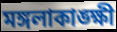
মঙ্গলাকাঙ্ক্ষী